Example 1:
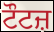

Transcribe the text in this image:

ਟੌਟਜ਼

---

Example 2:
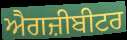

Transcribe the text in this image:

ਐਗਜ਼ੀਬੀਟਰ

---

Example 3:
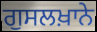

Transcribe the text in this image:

ਗੁਸਲਖ਼ਾਨੇ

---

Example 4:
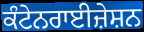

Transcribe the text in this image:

ਕੰਟੇਨਰਾਈਜ਼ੇਸ਼ਨ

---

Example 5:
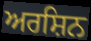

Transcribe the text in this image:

ਅਰਸ਼ਿਨ